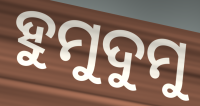
ହୁମୁଦୁମୁ